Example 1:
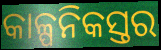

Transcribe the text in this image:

କାଳ୍ପନିକସ୍ତର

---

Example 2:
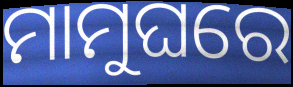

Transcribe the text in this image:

ମାମୁଘରେ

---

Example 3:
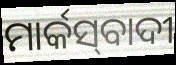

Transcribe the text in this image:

ମାର୍କସ୍‍ବାଦୀ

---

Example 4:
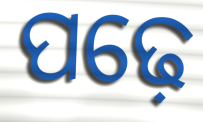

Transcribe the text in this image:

ପଢ଼େ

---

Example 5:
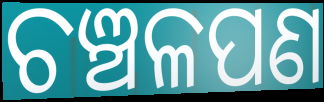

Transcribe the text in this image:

ଚଞ୍ଚଳପଣ